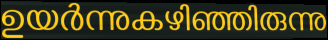
ഉയർന്നുകഴിഞ്ഞിരുന്നു